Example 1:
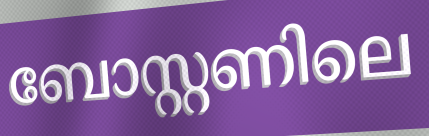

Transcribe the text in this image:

ബോസ്റ്റണിലെ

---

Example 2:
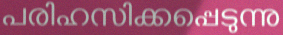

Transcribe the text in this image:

പരിഹസിക്കപ്പെടുന്നു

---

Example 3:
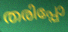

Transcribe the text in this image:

തരിപ്പോ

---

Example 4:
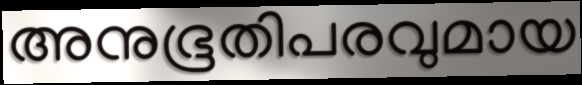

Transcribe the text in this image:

അനുഭൂതിപരവുമായ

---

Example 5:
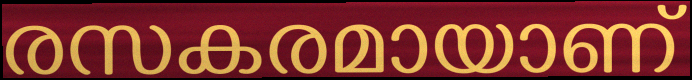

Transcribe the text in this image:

രസകരമായാണ്